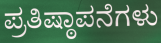
ಪ್ರತಿಷ್ಠಾಪನೆಗಳು